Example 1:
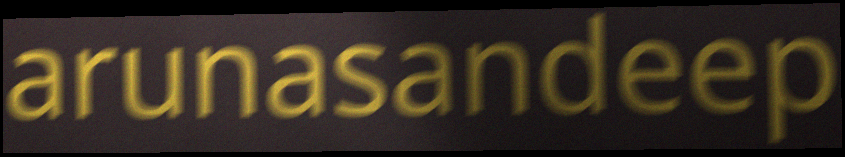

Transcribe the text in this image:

arunasandeep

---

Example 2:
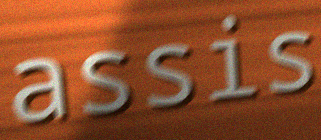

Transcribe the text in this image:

assis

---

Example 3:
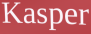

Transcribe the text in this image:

Kasper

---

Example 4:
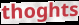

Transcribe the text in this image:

thoghts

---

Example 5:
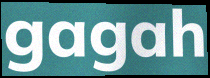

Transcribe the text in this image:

gagah